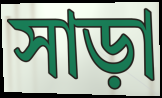
সাড়া